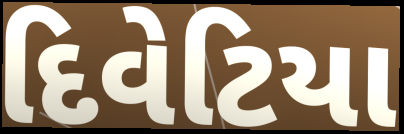
દિવેટિયા